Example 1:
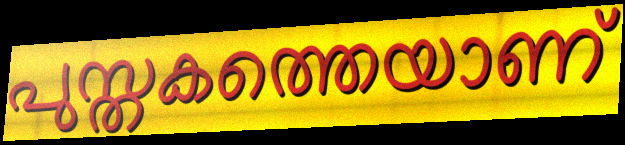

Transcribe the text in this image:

പുസ്തകത്തെയാണ്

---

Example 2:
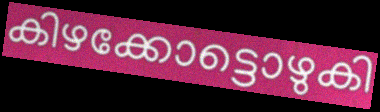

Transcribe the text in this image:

കിഴക്കോട്ടൊഴുകി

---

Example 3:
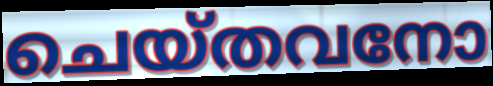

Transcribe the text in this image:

ചെയ്തവനോ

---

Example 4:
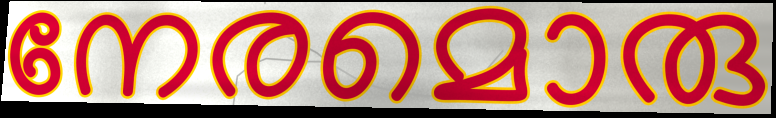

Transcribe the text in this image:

നേരമൊരു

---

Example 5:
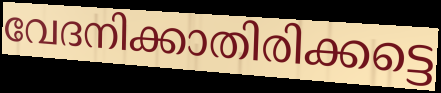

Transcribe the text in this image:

വേദനിക്കാതിരിക്കട്ടെ